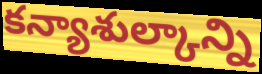
కన్యాశుల్కాన్ని